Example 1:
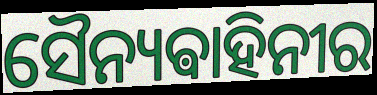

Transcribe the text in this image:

ସୈନ୍ୟଵାହିନୀର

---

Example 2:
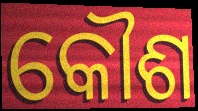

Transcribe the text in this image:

କୌଶ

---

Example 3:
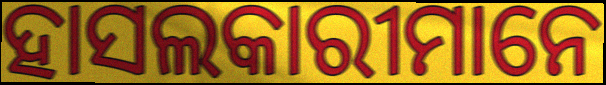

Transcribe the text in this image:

ହାସଲକାରୀମାନେ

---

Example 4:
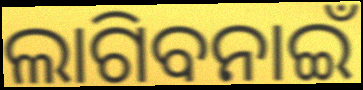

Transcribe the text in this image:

ଲାଗିବନାଇଁ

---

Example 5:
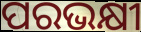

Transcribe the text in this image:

ପରଭକ୍ଷୀ